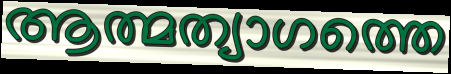
ആത്മത്യാഗത്തെ